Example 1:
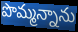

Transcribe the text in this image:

పొమ్మన్నాను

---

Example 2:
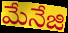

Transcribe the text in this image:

మేనేజి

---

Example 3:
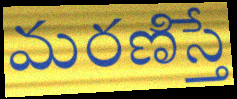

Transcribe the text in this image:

మరణిస్తే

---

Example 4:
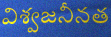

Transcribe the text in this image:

విశ్వజనీనత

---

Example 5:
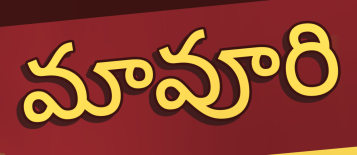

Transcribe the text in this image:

మావూరి